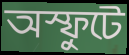
অস্ফুটে